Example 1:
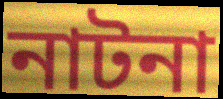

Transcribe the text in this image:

নাটনা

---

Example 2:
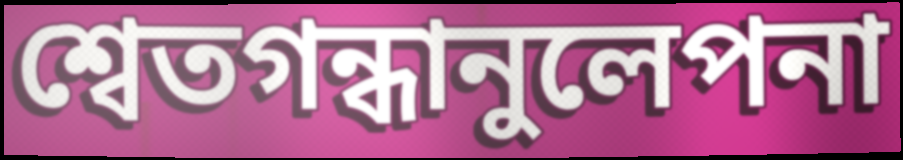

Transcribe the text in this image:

শ্বেতগন্ধানুলেপনা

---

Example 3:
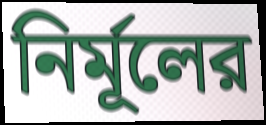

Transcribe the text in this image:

নির্মূলের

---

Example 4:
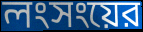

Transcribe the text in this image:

লংসংয়ের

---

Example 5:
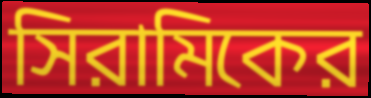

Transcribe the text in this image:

সিরামিকের